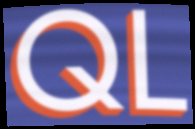
QL